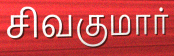
சிவகுமார்